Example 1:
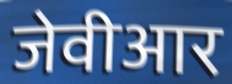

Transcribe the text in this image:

जेवीआर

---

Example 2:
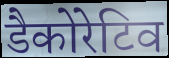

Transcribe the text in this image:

डैकोरेटिव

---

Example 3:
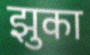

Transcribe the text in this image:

झुका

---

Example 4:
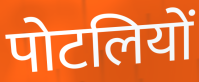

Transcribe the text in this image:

पोटलियों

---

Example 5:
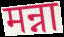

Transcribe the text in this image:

मन्ना